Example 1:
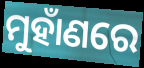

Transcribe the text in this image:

ମୁହାଁଣରେ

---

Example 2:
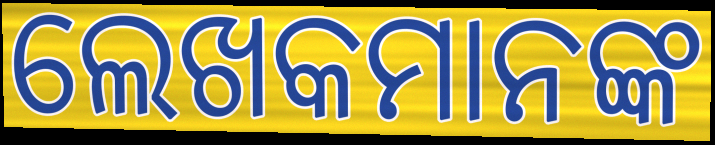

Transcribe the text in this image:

ଲେଖକମାନଙ୍କ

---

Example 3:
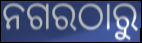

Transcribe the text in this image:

ନଗରଠାରୁ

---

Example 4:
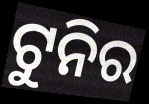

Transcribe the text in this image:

ଟୁନିର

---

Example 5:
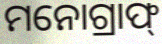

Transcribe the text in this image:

ମନୋଗ୍ରାଫ୍